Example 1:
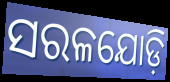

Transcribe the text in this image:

ସରଳଯୋଡ଼ି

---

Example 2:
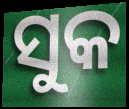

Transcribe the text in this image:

ସୁକ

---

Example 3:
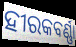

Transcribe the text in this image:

ହୀରକବର୍ଣ୍ଣା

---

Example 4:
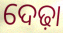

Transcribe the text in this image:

ଦେଢ଼ା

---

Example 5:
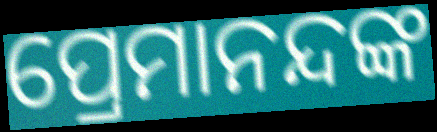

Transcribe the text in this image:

ପ୍ରେମାନନ୍ଦଙ୍କ